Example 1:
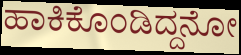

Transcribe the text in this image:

ಹಾಕಿಕೊಂಡಿದ್ದನೋ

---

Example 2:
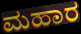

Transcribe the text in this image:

ಮಹಾರ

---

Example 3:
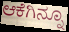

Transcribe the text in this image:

ಆಕೆಗಿನ್ನೂ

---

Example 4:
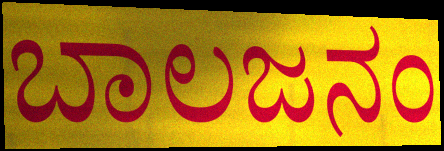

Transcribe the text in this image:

ಬಾಲಜನಂ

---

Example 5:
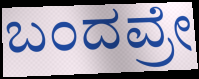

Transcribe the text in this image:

ಬಂದವ್ರೇ